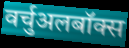
वर्चुअलबॉक्स